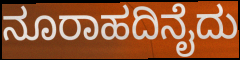
ನೂರಾಹದಿನೈದು